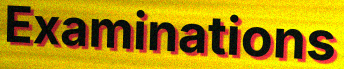
Examinations